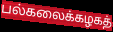
பல்கலைக்கழகத்